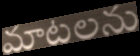
మాటలను